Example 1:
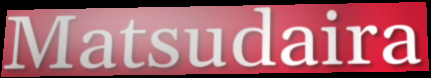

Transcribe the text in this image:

Matsudaira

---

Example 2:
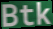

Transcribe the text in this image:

Btk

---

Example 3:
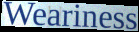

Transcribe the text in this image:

Weariness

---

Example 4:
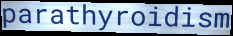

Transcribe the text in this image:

parathyroidism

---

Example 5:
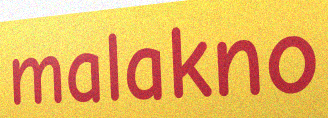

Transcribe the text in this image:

malakno